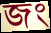
জং